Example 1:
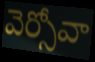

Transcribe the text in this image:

వెర్సోవా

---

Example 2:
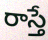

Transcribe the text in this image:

రాస్తే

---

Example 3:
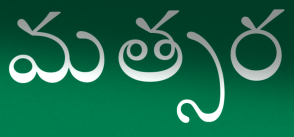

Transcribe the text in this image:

మత్సర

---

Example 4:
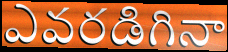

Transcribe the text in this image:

ఎవరడిగినా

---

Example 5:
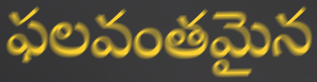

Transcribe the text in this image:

ఫలవంతమైన